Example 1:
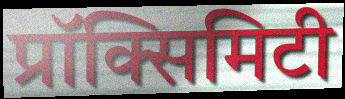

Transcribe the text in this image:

प्रॉक्सिमिटी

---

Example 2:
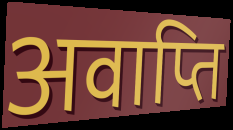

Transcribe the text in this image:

अवाप्ति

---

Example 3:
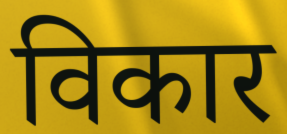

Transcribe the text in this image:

विकार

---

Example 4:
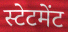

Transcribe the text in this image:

स्टेटमेंट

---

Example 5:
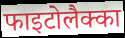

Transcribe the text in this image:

फाइटोलैक्का